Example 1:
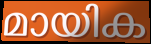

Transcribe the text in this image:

മായിക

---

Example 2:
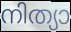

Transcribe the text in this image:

നിത്യാ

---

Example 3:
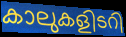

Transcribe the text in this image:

കാലുകളിടറി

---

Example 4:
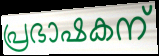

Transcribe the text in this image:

പ്രഭാഷകന്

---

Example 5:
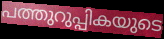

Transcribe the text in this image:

പത്തുറുപ്പികയുടെ